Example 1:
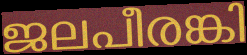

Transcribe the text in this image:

ജലപീരങ്കി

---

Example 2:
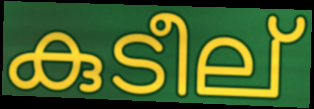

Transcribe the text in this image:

കുടീല്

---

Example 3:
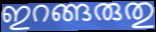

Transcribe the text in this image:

ഇറങ്ങരുതു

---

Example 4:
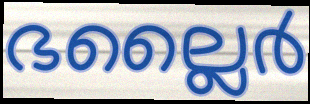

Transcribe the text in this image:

ഭല്ലൈർ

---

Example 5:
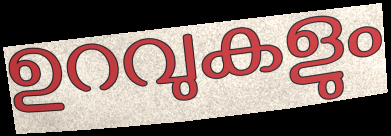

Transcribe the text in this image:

ഉറവുകളും